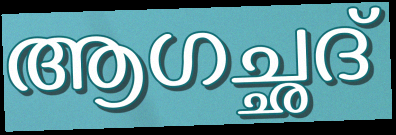
ആഗച്ഛദ്